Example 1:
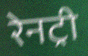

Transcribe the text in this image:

रेनट्री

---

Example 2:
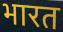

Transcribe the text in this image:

भारत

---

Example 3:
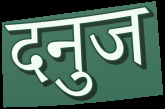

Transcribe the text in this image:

दनुज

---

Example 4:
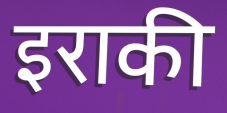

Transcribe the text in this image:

इराकी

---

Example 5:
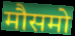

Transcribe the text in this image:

मौसमो